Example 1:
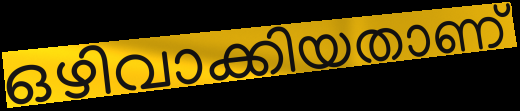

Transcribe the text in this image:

ഒഴിവാക്കിയതാണ്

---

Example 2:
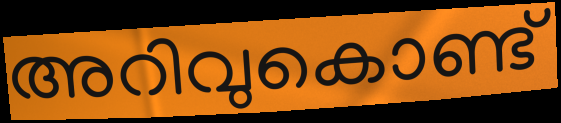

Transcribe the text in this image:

അറിവുകൊണ്ട്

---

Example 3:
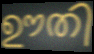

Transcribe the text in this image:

ഊതി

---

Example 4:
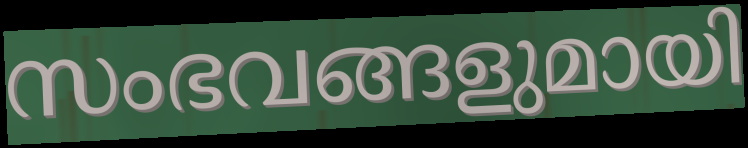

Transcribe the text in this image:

സംഭവങ്ങളുമായി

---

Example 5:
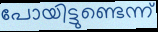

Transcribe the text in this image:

പോയിട്ടുണ്ടെന്ന്